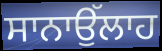
ਸਾਨਾਉੱਲਾਹ